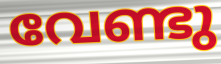
വേണ്ടു